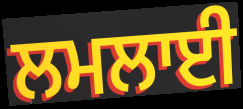
ਲਮਲਾਈ